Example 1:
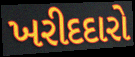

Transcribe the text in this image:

ખરીદદારો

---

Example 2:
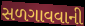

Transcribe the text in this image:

સળગાવવાની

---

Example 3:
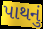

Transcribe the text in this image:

પાથનું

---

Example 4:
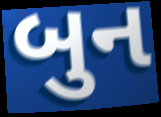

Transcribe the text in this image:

બુન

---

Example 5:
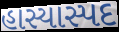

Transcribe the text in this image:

હાસ્યાસ્પદ